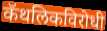
कॅथलिकविरोधी